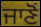
ਜਾਣੋਂ